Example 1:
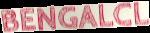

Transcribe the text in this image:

BENGALCL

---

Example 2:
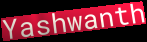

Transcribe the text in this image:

Yashwanth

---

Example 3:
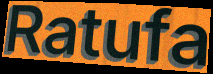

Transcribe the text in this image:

Ratufa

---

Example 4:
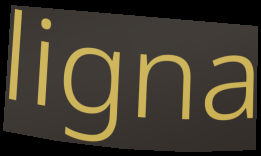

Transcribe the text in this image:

ligna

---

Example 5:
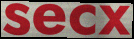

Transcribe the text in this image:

secx